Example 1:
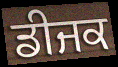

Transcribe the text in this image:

ਡੀਜਕ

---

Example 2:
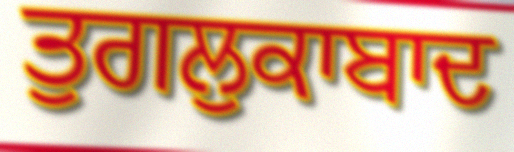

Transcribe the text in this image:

ਤੁਗਲੁਕਾਬਾਦ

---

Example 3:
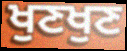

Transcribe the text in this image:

ਖੁਣਖੁਣ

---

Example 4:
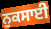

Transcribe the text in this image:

ਨੁਕਸਾਈ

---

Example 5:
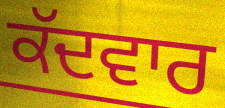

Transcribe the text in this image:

ਕੱਦਵਾਰ